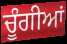
ਚੂੰਗੀਆਂ